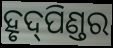
ହୃଦ୍‌ପିଣ୍ଡର